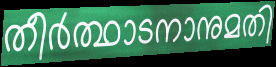
തീർത്ഥാടനാനുമതി